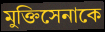
মুক্তিসেনাকে